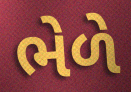
ભેળે